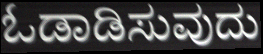
ಓಡಾಡಿಸುವುದು